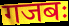
गजबः